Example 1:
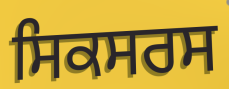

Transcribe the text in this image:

ਸਿਕਸਰਸ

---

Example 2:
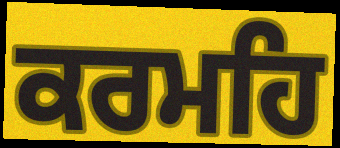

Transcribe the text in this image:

ਕਰਮਹਿ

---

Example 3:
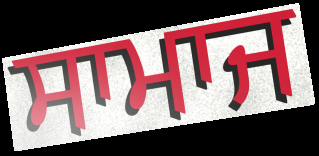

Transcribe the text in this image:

ਸਾਮਾਜ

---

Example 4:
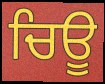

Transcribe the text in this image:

ਚਿਊ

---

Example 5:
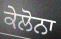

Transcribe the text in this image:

ਕੇਲੋਨਾ